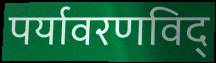
पर्यावरणविद्